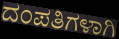
ದಂಪತಿಗಳಾಗಿ